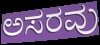
ಅಸರವು